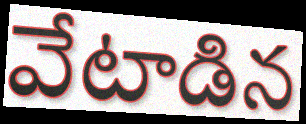
వేటాడిన